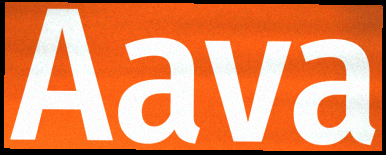
Aava